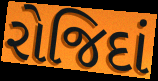
રોજિદાં